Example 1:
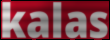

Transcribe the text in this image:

kalas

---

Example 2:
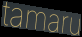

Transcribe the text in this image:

tamaru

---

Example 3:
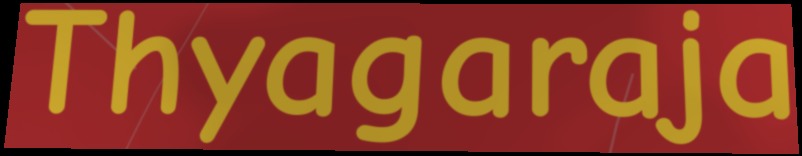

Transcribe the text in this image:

Thyagaraja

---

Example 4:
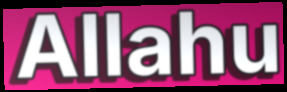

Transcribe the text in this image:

Allahu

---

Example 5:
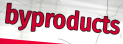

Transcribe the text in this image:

byproducts